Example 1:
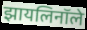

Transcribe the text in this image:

झायलिनॉले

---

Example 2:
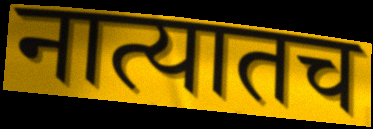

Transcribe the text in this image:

नात्यातच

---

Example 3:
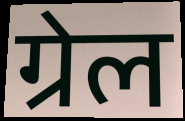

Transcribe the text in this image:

ग्रेल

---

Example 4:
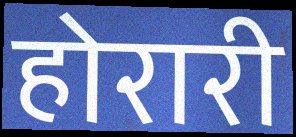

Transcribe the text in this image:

होरारी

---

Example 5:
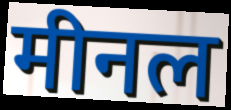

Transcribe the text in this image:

मीनल